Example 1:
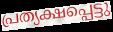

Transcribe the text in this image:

പ്രത്യക്ഷപ്പെട്ടു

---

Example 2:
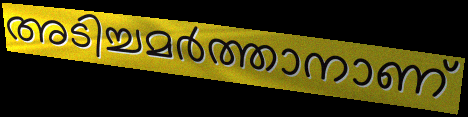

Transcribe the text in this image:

അടിച്ചമർത്താനാണ്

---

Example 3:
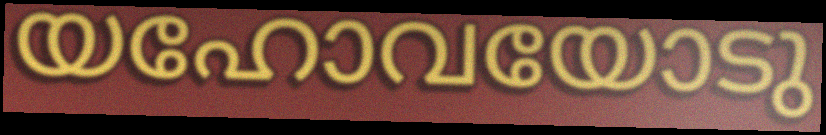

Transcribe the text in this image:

യഹോവയോടു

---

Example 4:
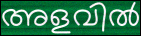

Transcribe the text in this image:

അളവിൽ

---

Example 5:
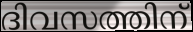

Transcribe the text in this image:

ദിവസത്തിന്